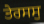
ਤੇਰਸਸੁ